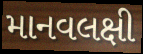
માનવલક્ષી